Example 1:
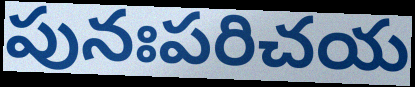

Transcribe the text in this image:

పునఃపరిచయ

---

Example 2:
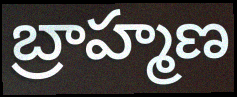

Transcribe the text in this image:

బ్రాహ్మణ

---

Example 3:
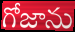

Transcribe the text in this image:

గోజాను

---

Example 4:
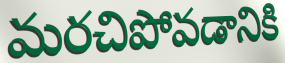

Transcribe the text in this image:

మరచిపోవడానికి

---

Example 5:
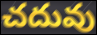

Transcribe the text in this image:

చదువు